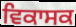
ਵਿਕਾਸਕ